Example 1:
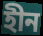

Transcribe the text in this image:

হীন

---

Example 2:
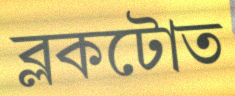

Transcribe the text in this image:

ব্লকটোত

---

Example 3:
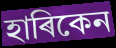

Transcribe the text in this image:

হাৰিকেন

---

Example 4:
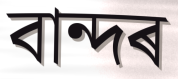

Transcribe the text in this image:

বান্দৰ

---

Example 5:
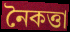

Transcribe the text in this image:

নৈকত্তা